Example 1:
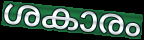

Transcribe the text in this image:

ശകാരം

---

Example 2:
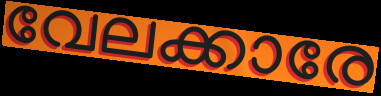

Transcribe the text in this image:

വേലക്കാരേ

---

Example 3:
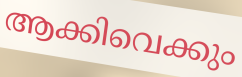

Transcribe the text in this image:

ആക്കിവെക്കും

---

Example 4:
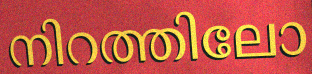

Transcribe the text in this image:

നിറത്തിലോ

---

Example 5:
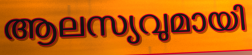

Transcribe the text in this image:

ആലസ്യവുമായി